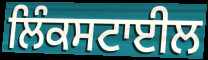
ਲਿੰਕਸਟਾਈਲ